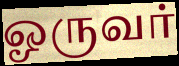
ஓருவர்